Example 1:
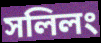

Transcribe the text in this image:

সলিলং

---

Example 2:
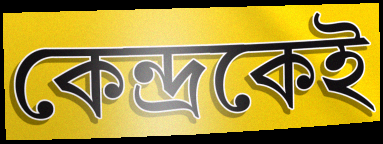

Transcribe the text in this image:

কেন্দ্রকেই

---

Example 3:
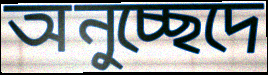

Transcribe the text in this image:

অনুচ্ছেদে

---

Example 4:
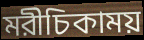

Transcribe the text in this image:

মরীচিকাময়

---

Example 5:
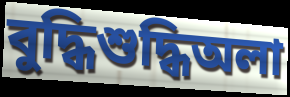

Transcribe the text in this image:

বুদ্ধিশুদ্ধিঅলা